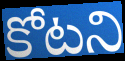
కోటని